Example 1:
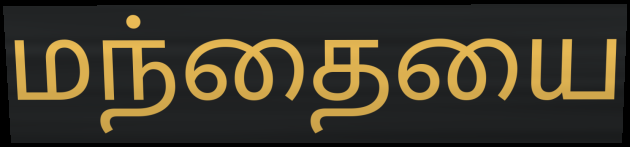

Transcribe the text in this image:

மந்தையை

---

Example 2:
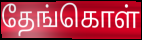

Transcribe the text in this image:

தேங்கொள்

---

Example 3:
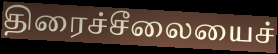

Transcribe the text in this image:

திரைச்சீலையைச்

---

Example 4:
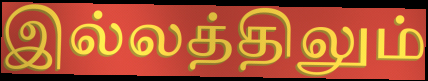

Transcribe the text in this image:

இல்லத்திலும்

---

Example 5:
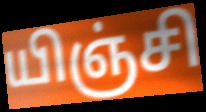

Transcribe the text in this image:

யிஞ்சி